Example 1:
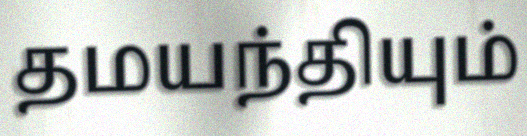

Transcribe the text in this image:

தமயந்தியும்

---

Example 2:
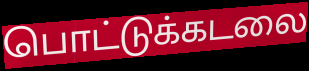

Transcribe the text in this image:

பொட்டுக்கடலை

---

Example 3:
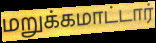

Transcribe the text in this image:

மறுக்கமாட்டார்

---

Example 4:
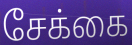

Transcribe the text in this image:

சேக்கை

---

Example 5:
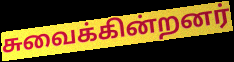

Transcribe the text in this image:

சுவைக்கின்றனர்